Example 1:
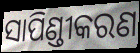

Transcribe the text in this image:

ସାପିଣ୍ଡୀକରଣ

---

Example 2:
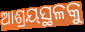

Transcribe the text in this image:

ଆଶ୍ରୟସ୍ଥଳକୁ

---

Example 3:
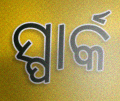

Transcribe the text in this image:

ସ୍ପାର୍କ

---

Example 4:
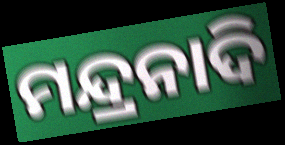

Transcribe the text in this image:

ମନ୍ଦ୍ରନାଦି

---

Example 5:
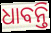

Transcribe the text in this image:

ଧାବନ୍ତି